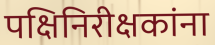
पक्षिनिरीक्षकांना